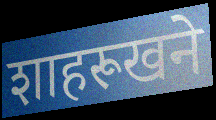
शाहरूखने